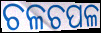
ଚଳଚପଳ